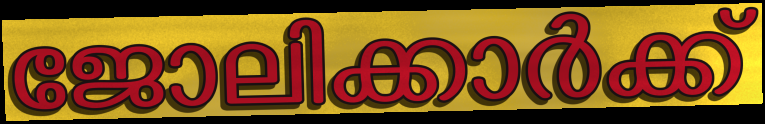
ജോലിക്കാർക്ക്